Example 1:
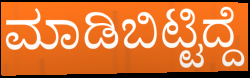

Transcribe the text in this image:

ಮಾಡಿಬಿಟ್ಟಿದ್ದೆ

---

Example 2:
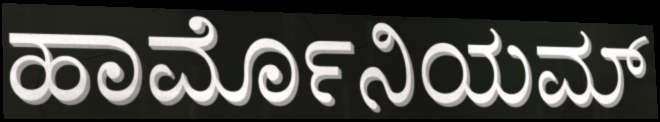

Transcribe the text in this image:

ಹಾರ್ಮೊನಿಯಮ್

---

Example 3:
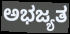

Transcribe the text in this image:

ಅಭಜ್ಯತ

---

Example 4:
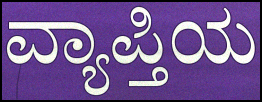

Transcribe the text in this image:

ವ್ಯಾಪ್ತಿಯ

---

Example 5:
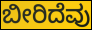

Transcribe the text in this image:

ಬೀರಿದೆವು